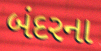
બંદરના